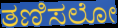
ತಣಿಸಲೋ